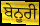
ਬੇਨੂਰੀ